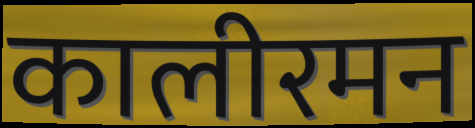
कालीरमन